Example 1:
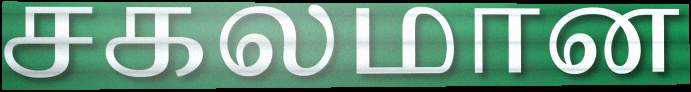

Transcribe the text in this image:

சகலமான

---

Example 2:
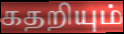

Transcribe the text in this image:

கதறியும்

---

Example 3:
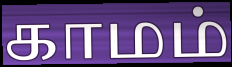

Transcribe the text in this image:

காமம்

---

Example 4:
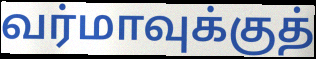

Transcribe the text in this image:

வர்மாவுக்குத்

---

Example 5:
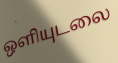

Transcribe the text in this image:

ஒளியுடலை